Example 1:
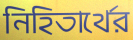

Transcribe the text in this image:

নিহিতার্থের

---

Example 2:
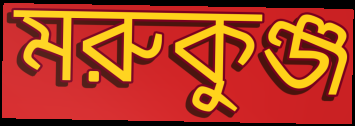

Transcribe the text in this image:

মরুকুঞ্জ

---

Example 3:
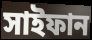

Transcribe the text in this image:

সাইফান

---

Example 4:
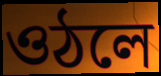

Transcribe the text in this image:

ওঠলে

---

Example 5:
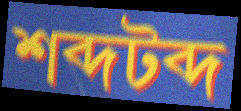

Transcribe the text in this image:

শব্দটব্দ